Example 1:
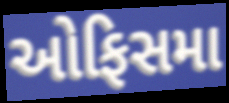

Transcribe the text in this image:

ઓફિસમા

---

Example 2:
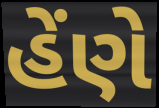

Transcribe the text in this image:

હેંણે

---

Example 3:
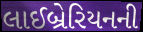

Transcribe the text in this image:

લાઈબ્રેરિયનની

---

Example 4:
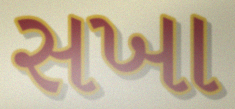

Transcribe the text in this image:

સખા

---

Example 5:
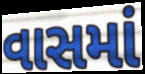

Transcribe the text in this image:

વાસમાં